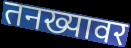
तनख्यावर